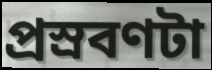
প্রস্রবণটা